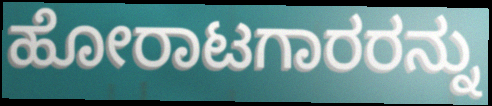
ಹೋರಾಟಗಾರರನ್ನು